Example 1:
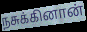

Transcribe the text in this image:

நசுக்கினான்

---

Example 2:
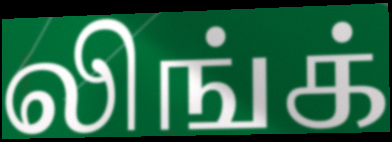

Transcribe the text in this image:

லிங்க்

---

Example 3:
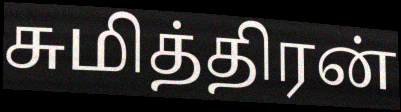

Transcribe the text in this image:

சுமித்திரன்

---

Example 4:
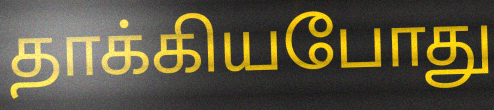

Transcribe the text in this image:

தாக்கியபோது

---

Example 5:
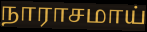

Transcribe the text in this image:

நாராசமாய்